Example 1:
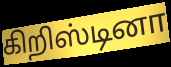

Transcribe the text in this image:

கிறிஸ்டினா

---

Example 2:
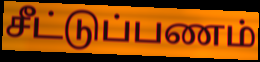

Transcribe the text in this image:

சீட்டுப்பணம்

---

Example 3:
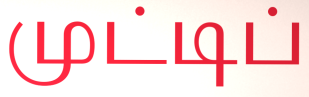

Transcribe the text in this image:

முட்டிப்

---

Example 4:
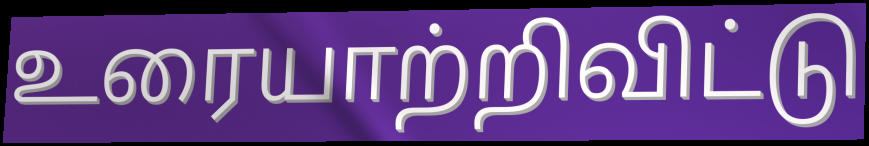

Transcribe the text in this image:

உரையாற்றிவிட்டு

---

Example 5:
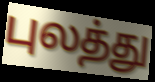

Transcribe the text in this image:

புலத்து